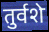
तुर्वशे